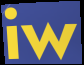
iw